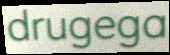
drugega